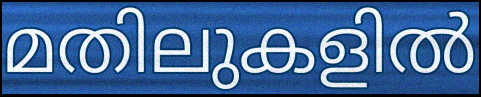
മതിലുകളിൽ